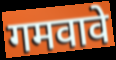
गमवावे